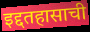
इद्दतहासाची